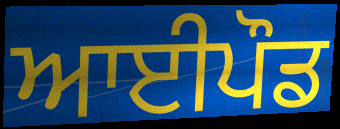
ਆਈਪੌਡ